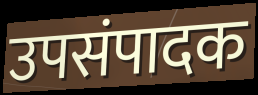
उपसंपादक